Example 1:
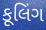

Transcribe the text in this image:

કૂલિંગ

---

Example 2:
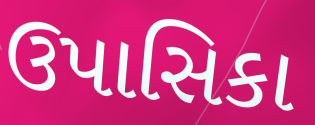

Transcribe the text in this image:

ઉપાસિકા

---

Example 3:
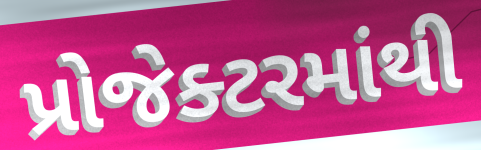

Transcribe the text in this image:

પ્રોજેક્ટરમાંથી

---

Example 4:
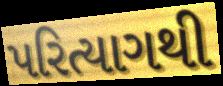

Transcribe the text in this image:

પરિત્યાગથી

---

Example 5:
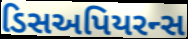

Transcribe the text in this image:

ડિસઅપિયરન્સ